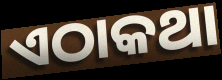
ଏଠାକଥା